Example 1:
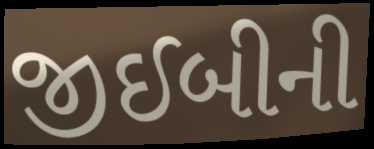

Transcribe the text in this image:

જીઈબીની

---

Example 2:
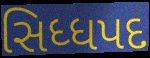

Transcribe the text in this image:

સિધ્ધપદ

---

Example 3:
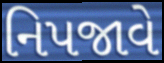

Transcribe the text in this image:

નિપજાવે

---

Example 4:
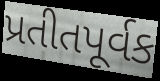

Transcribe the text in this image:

પ્રતીતપૂર્વક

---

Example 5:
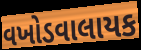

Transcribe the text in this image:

વખોડવાલાયક